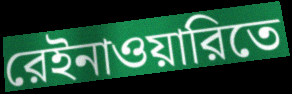
রেইনাওয়ারিতে